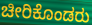
ಚೀರಿಕೊಂಡರು